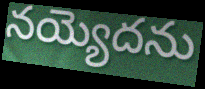
నయ్యెదను